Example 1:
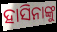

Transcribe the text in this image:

ହାସିନାଙ୍କୁ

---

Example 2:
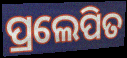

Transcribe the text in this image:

ପ୍ରଲେପିତ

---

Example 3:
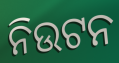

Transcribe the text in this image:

ନିଉଟନ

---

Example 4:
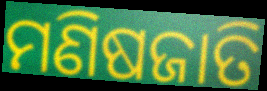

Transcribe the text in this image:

ମଣିଷଜାତି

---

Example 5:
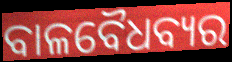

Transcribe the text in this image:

ବାଳବୈଧବ୍ୟର